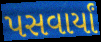
પસવાર્યાં